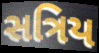
સત્રિય